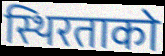
स्थिरताको